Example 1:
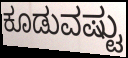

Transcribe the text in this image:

ಕೂಡುವಷ್ಟು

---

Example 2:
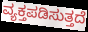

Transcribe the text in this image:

ವ್ಯಕ್ತಪಡಿಸುತ್ತದೆ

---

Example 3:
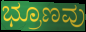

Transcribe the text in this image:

ಭ್ರೂಣವು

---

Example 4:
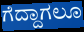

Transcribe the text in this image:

ಗೆದ್ದಾಗಲೂ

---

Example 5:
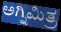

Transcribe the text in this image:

ಅಗ್ನಿಮಿತ್ರ